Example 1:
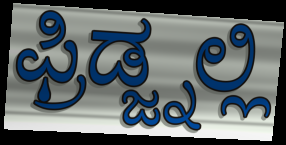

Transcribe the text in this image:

ಫ್ರಿಡ್ಜ್ನಲ್ಲಿ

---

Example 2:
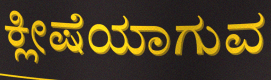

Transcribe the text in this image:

ಕ್ಲೀಷೆಯಾಗುವ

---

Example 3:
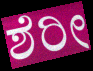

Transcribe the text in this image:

ಶೆರೀ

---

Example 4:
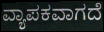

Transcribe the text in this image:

ವ್ಯಾಪಕವಾಗದೆ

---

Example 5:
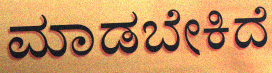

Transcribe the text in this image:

ಮಾಡಬೇಕಿದೆ